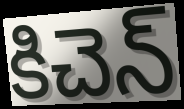
కిచెన్